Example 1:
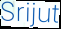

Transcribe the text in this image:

Srijut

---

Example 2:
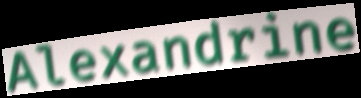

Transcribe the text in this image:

Alexandrine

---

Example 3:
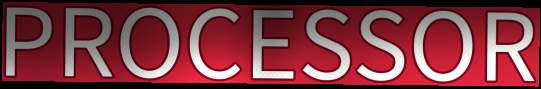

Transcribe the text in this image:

PROCESSOR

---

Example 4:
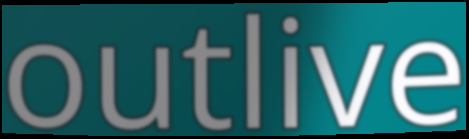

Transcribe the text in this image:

outlive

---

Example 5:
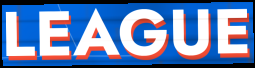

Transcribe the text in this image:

LEAGUE